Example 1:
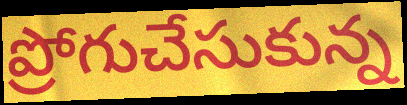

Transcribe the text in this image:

ప్రోగుచేసుకున్న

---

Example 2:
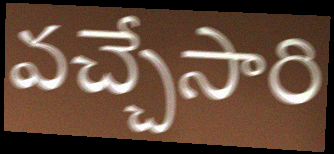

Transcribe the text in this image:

వచ్చేసారి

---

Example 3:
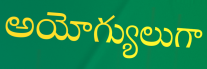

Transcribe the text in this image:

అయోగ్యులుగా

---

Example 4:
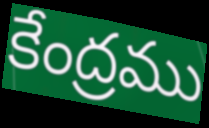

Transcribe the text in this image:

కేంద్రము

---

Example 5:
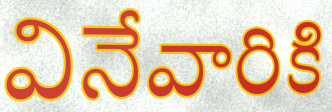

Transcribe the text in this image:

వినేవారికి